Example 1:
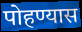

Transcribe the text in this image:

पोहण्यास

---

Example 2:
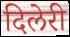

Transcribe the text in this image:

दिलेरी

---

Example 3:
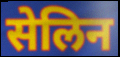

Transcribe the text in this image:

सेलिन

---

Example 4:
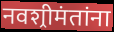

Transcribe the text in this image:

नवश्रीमंतांना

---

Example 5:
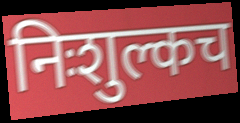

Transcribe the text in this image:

निःशुल्कच